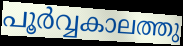
പൂർവ്വകാലത്തു